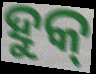
ହୁକ୍